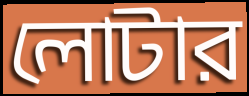
লোটার